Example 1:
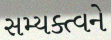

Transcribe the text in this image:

સમ્યક્ત્વને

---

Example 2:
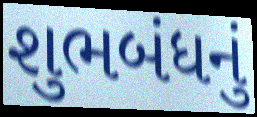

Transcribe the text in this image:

શુભબંધનું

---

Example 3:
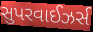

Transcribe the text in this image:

સુપરવાઈઝર્સ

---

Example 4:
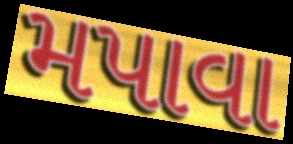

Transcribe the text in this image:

મપાવા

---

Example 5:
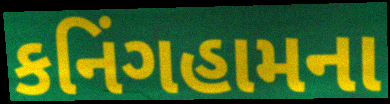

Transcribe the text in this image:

કનિંગહામના